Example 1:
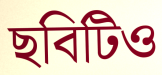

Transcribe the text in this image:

ছবিটিও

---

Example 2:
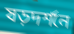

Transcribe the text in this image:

ষড়দর্শনে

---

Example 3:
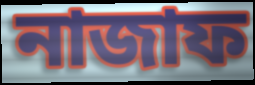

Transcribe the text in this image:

নাজাফ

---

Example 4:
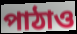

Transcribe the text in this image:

পাঠাও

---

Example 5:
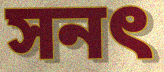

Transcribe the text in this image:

সনৎ